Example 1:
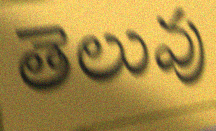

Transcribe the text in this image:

తెలువు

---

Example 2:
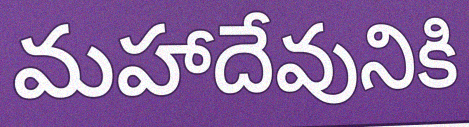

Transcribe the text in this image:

మహాదేవునికి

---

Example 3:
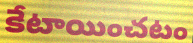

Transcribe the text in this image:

కేటాయించటం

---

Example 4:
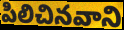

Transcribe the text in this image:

పిలిచినవాని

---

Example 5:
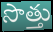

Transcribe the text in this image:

సొత్తు